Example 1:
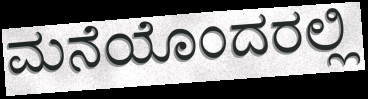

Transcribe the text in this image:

ಮನೆಯೊಂದರಲ್ಲಿ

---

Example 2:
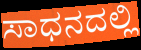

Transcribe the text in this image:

ಸಾಧನದಲ್ಲಿ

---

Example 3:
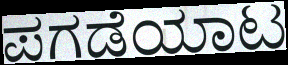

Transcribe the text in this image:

ಪಗಡೆಯಾಟ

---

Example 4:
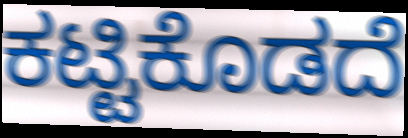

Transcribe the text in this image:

ಕಟ್ಟಿಕೊಡದೆ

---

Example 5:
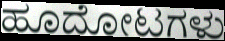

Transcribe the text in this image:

ಹೂದೋಟಗಳು